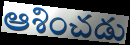
ఆశించడు